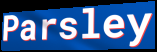
Parsley